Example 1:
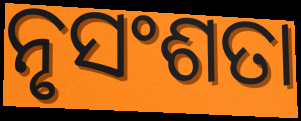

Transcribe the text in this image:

ନୃସଂଶତା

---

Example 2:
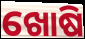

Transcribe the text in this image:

ଖୋଷି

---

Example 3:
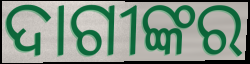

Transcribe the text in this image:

ଦାଗୀଙ୍କର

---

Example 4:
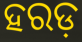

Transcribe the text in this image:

ହରଡ଼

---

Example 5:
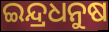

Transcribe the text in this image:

ଇନ୍ଦ୍ରଧନୁଷ